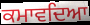
ਕਮਾਵਦਿਆ